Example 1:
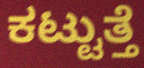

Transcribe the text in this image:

ಕಟ್ಟುತ್ತೆ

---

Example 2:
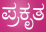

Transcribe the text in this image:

ಪ್ರಕೃತ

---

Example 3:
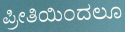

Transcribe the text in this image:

ಪ್ರೀತಿಯಿಂದಲೂ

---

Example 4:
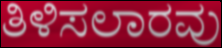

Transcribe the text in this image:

ತಿಳಿಸಲಾರವು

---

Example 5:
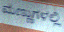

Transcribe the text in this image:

ಮಣ್ಣುಗಳಲ್ಲಿ